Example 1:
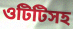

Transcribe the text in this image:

ওটিটিসহ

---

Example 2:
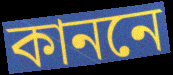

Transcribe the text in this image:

কাননে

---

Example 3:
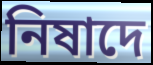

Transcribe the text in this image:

নিষাদে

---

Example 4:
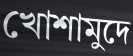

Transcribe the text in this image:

খোশামুদে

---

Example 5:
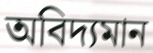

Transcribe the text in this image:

অবিদ্যমান